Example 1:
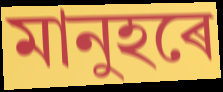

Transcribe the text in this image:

মানুহৰে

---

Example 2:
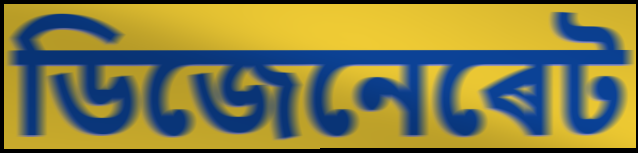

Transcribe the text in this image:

ডিজেনেৰেট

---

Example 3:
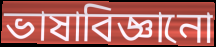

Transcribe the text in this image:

ভাষাবিজ্ঞানো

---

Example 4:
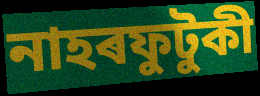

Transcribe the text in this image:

নাহৰফুটুকী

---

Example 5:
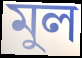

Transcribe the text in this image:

মুল